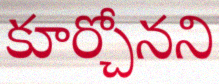
కూర్చోనని